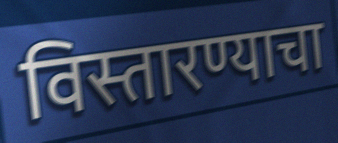
विस्तारण्याचा